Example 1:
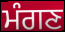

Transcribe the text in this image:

ਮੰਗਣ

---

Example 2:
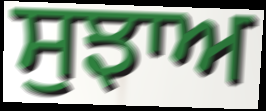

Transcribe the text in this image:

ਸੁਝਾਅ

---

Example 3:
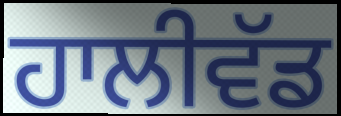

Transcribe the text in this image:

ਹਾਲੀਵੱਡ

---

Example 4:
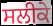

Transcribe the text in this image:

ਸਲੀਕੇ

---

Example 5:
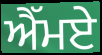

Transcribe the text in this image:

ਐੱਮਏ